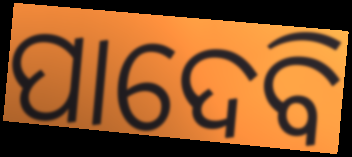
ପାଦେବି